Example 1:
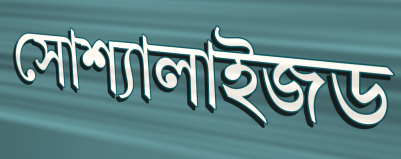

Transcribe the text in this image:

সোশ্যালাইজড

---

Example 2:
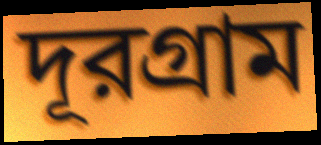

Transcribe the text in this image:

দূরগ্রাম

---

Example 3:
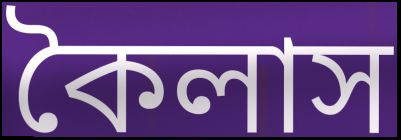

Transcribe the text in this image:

কৈলাস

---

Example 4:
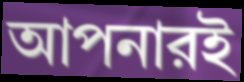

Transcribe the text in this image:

আপনারই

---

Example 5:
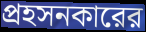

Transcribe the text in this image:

প্রহসনকারের